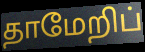
தாமேறிப்